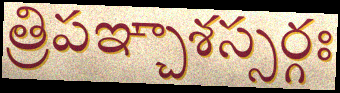
త్రిపఞ్చాశస్సర్గః